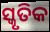
ସ୍କୃତିକ